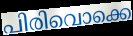
പിരിവൊക്കെ